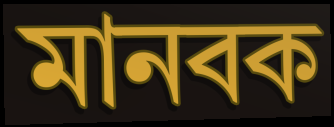
মানবক